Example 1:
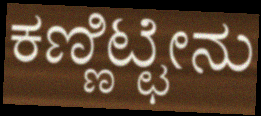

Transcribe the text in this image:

ಕಣ್ಣಿಟ್ಟೇನು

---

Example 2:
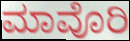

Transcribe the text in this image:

ಮಾವೊರಿ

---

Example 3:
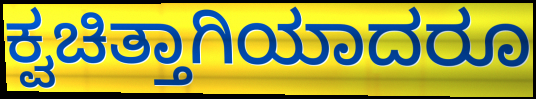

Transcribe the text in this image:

ಕ್ವಚಿತ್ತಾಗಿಯಾದರೂ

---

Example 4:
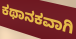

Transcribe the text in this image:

ಕಥಾನಕವಾಗಿ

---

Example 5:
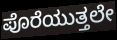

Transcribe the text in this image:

ಪೊರೆಯುತ್ತಲೇ